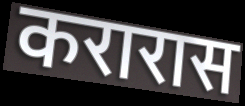
करारास